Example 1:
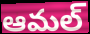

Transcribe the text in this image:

ఆమల్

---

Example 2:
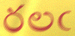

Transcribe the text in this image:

రలఁ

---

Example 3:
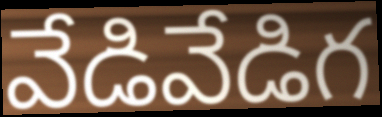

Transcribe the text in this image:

వేడివేడిగ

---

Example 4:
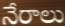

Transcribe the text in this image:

నేరాలు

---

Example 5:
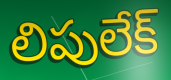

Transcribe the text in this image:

లిపులేక్